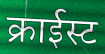
क्राईस्ट